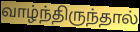
வாழ்ந்திருந்தால்